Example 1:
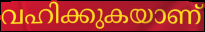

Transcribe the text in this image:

വഹിക്കുകയാണ്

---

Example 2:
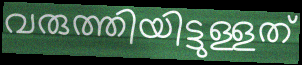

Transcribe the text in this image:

വരുത്തിയിട്ടുള്ളത്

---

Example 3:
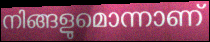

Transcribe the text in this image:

നിങ്ങളുമൊന്നാണ്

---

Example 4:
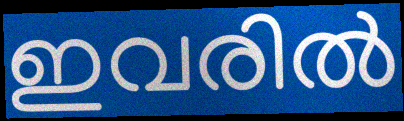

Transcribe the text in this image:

ഇവരിൽ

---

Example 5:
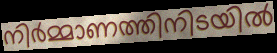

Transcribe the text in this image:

നിർമ്മാണത്തിനിടയിൽ